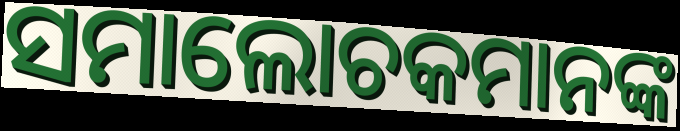
ସମାଲୋଚକମାନଙ୍କ